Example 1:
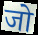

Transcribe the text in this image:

जो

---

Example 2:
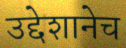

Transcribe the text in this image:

उद्देशानेच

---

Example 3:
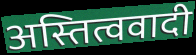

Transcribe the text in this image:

अस्तित्ववादी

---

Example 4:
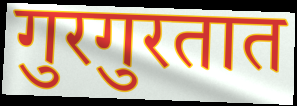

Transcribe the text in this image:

गुरगुरतात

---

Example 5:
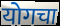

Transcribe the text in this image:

योगचा